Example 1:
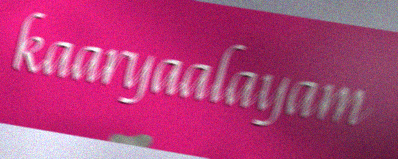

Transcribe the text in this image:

kaaryaalayam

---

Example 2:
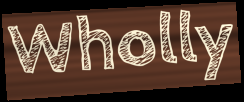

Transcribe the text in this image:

Wholly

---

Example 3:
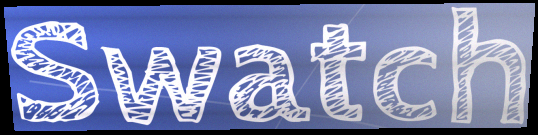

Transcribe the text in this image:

Swatch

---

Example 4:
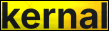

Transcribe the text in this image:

kernal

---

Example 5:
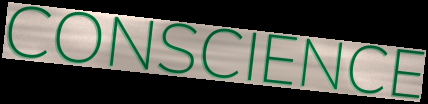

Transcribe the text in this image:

CONSCIENCE